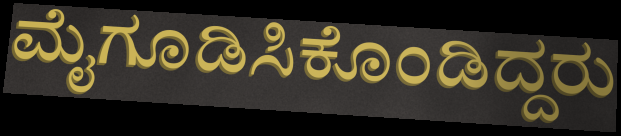
ಮೈಗೂಡಿಸಿಕೊಂಡಿದ್ದರು